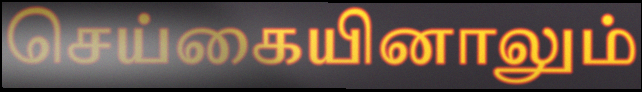
செய்கையினாலும்